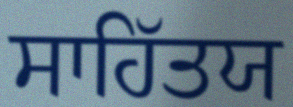
ਸਾਹਿੱਤਯ